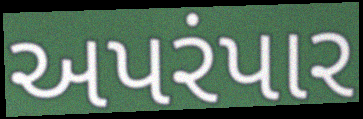
અપરંપાર